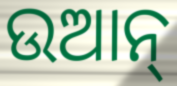
ଉଆନ୍